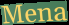
Mena